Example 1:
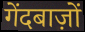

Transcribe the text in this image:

गेंदबाज़ों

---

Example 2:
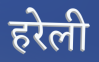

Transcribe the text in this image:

हरेली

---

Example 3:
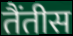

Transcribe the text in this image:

तैंतीस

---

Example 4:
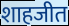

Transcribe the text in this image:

शाहजीत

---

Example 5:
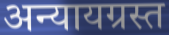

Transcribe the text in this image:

अन्यायग्रस्त